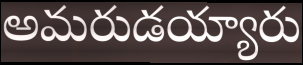
అమరుడయ్యారు